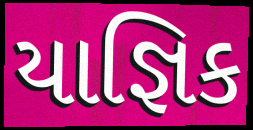
યાજ્ઞિક